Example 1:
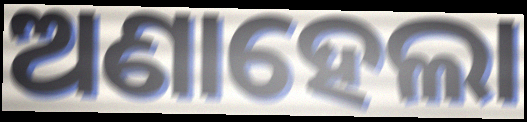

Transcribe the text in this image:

ଅଣାହେଲା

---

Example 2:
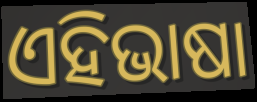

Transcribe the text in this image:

ଏହିଭାଷା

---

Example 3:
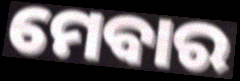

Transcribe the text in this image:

ମେବାର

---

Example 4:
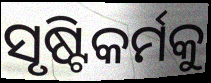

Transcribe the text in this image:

ସୃଷ୍ଟିକର୍ମକୁ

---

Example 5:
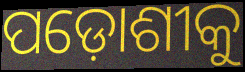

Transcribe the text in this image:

ପଡ଼ୋଶୀକୁ